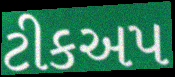
ટીકઅપ